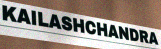
KAILASHCHANDRA